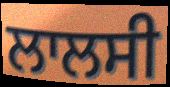
ਲਾਲਸੀ